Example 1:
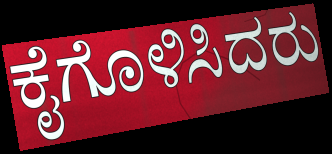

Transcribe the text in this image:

ಕೈಗೊಳಿಸಿದರು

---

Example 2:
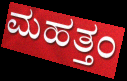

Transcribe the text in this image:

ಮಹತ್ತಂ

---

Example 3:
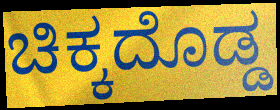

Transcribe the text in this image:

ಚಿಕ್ಕದೊಡ್ಡ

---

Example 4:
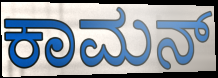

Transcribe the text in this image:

ಕಾಮನ್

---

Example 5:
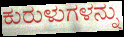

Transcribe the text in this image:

ಕುರುಳುಗಳನ್ನು